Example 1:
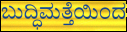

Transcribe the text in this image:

ಬುದ್ಧಿಮತ್ತೆಯಿಂದ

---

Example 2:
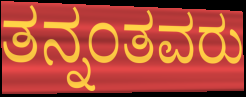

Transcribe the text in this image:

ತನ್ನಂತವರು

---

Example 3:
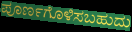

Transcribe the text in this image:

ಪೂರ್ಣಗೊಳಿಸಬಹುದು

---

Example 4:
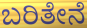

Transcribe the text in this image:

ಬರಿತೇನೆ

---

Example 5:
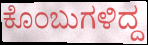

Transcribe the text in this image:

ಕೊಂಬುಗಳಿದ್ದ